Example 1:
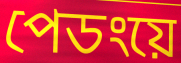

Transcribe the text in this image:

পেডংয়ে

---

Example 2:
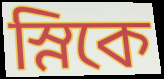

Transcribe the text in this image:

স্নিকে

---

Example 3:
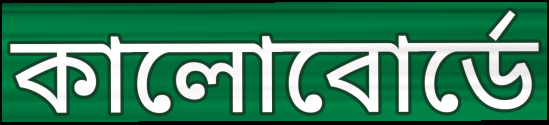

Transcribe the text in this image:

কালোবোর্ডে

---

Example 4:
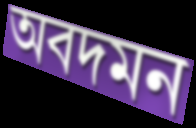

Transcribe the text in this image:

অবদমন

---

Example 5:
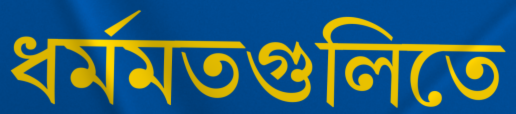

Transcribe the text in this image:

ধর্মমতগুলিতে